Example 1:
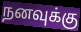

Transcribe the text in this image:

நனவுக்கு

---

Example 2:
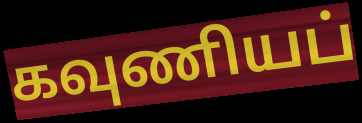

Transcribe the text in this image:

கவுணியப்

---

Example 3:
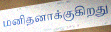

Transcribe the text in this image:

மனிதனாக்குகிறது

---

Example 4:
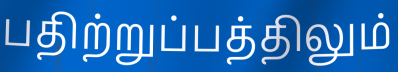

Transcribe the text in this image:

பதிற்றுப்பத்திலும்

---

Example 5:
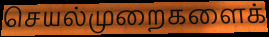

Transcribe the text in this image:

செயல்முறைகளைக்